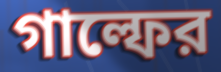
গাল্ফের